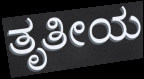
ತೃತೀಯ